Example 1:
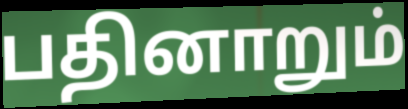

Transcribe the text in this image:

பதினாறும்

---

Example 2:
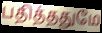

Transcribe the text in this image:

பதித்ததுமே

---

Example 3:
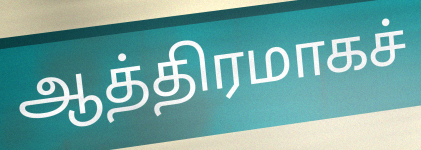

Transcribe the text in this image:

ஆத்திரமாகச்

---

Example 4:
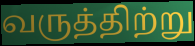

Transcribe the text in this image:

வருத்திற்று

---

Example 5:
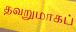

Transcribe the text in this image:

தவறுமாகப்